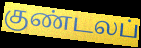
குண்டலப்